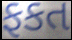
ફકત